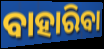
ବାହାରିବା